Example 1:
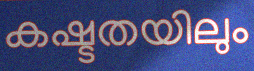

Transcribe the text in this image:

കഷ്ടതയിലും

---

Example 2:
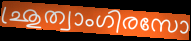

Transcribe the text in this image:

ഛ്രുത്വാംഗിരസോ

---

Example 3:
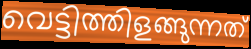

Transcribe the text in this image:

വെട്ടിത്തിളങ്ങുന്നത്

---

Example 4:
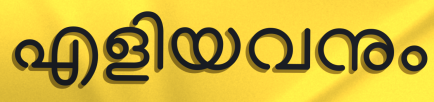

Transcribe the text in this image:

എളിയവനും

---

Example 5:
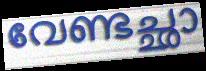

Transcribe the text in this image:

വേണ്ടച്ഛാ